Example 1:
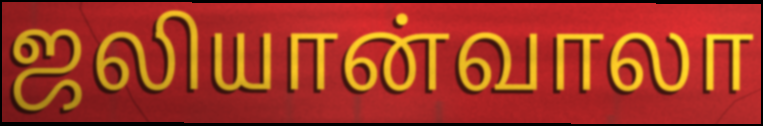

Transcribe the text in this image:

ஜலியான்வாலா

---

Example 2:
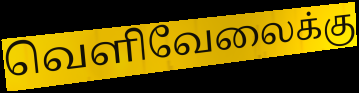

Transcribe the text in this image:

வெளிவேலைக்கு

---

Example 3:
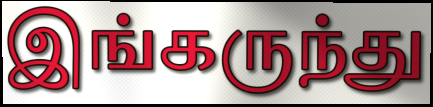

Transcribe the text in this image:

இங்கருந்து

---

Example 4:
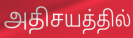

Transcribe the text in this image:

அதிசயத்தில்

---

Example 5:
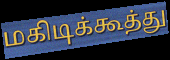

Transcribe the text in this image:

மகிடிக்கூத்து